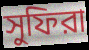
সুফিরা